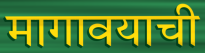
मागावयाची